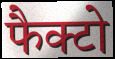
फैक्टो